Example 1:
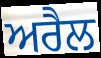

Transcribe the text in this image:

ਅਰੈਲ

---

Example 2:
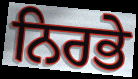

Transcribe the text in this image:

ਨਿਰਭੇ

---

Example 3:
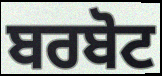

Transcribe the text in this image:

ਬਰਬੋਟ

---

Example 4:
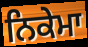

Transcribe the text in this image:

ਨਿਕੇਮਾ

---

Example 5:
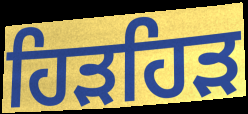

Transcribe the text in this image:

ਹਿੜਹਿੜ